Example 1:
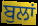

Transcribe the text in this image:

ਬੁਲਾਂ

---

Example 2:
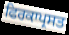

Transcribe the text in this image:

ਫਿਰਕਾਪ੍ਰਸਤ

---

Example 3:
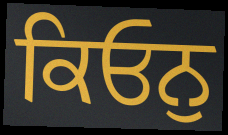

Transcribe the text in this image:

ਕਿਓਨੁ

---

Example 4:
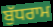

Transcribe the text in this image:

ਬੁੱਧਰਾਮ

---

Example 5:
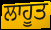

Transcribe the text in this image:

ਲਾਹੂਤ